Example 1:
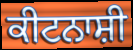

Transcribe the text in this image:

ਕੀਟਨਾਸ਼ੀ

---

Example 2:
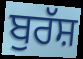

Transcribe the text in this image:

ਬੁਰੱਸ਼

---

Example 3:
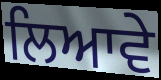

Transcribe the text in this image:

ਲਿਆਵੇ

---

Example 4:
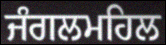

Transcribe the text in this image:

ਜੰਗਲਮਹਿਲ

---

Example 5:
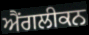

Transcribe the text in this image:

ਐਂਗਲੀਕਨ